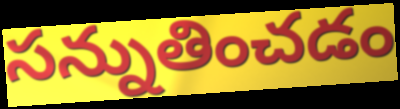
సన్నుతించడం